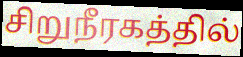
சிறுநீரகத்தில்